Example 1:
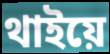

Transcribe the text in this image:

থাইয়ে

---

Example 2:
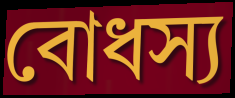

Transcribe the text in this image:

বোধস্য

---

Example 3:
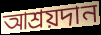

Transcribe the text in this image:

আশ্রয়দান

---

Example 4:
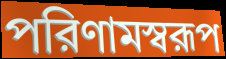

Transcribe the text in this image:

পরিণামস্বরূপ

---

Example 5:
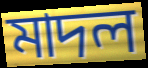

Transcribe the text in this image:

মাদল